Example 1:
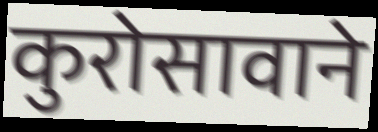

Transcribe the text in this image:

कुरोसावाने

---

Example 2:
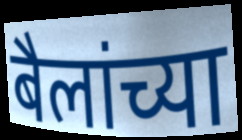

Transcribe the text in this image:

बैलांच्या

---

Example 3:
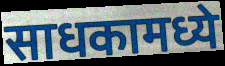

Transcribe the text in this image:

साधकामध्ये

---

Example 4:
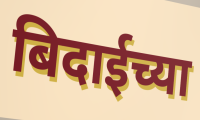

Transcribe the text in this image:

बिदाईच्या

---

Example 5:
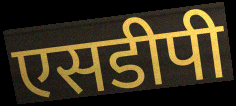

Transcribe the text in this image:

एसडीपी